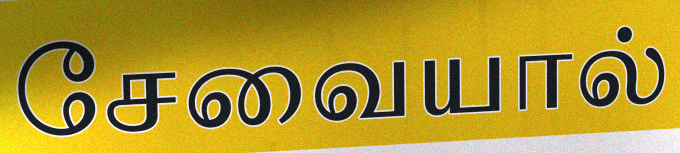
சேவையால்